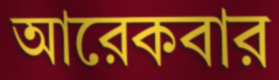
আরেকবার